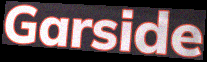
Garside